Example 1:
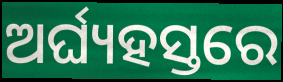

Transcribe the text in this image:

ଅର୍ଘ୍ୟହସ୍ତରେ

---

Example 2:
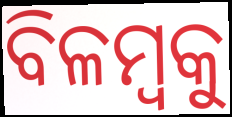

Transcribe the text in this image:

ବିଳମ୍ୱକୁ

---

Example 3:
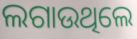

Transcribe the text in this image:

ଲଗାଉଥିଲେ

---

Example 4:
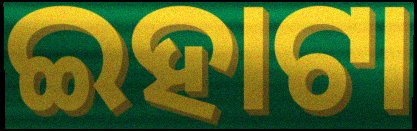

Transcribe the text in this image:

ଇହାଟା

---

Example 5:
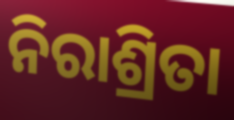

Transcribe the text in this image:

ନିରାଶ୍ରିତା